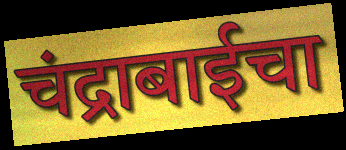
चंद्राबाईचा